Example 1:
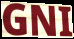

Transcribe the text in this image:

GNI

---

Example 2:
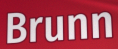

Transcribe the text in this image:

Brunn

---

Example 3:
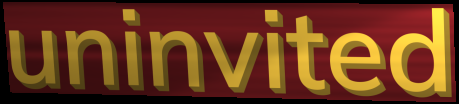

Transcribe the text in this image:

uninvited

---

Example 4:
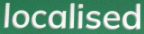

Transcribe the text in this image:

localised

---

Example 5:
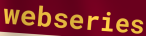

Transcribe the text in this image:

webseries